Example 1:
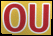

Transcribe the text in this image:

OU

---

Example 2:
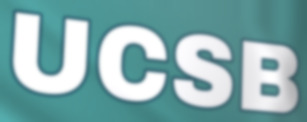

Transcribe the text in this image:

UCSB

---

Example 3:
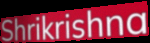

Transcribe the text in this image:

Shrikrishna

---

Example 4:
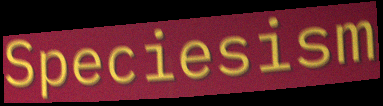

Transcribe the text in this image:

Speciesism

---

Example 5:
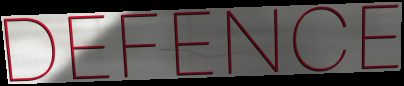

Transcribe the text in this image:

DEFENCE